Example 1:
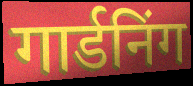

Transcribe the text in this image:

गार्डनिंग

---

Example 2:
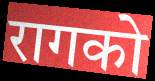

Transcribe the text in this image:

रागको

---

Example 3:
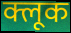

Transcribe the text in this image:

क्लूक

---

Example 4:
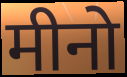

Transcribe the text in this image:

मीनो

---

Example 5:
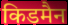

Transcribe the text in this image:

किडमैन